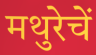
मथुरेचें